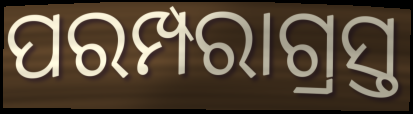
ପରମ୍ପରାଗ୍ରସ୍ତ